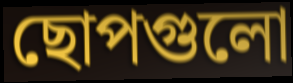
ছোপগুলো